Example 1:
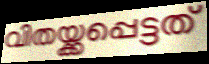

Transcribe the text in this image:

വിതയ്ക്കപ്പെട്ടത്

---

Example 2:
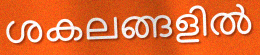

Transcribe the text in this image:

ശകലങ്ങളിൽ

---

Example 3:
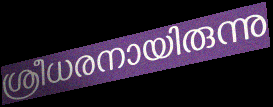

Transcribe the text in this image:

ശ്രീധരനായിരുന്നു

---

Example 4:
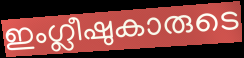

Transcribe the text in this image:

ഇംഗ്ലീഷുകാരുടെ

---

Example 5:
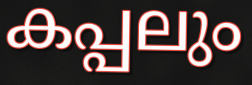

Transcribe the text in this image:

കപ്പലും